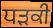
ਧੜਕੀ